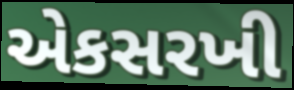
એકસરખી